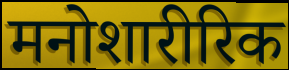
मनोशारीरिक